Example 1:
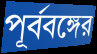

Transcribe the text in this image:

পূর্ববঙ্গের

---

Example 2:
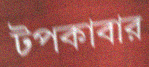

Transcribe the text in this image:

টপকাবার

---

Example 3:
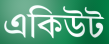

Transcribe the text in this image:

একিউট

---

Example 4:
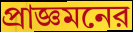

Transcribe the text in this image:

প্রাজ্ঞমনের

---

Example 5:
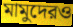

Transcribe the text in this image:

মামুদেরও